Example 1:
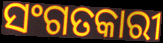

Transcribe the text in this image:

ସଂଗତକାରୀ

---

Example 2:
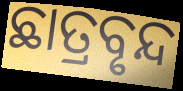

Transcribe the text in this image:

ଛାତ୍ରବୃନ୍ଦ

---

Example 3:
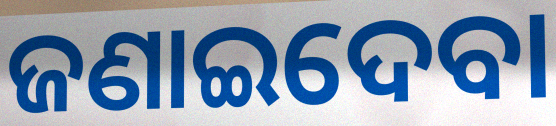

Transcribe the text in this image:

ଜଣାଇଦେବା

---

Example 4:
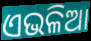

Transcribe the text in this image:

ଏଭଳିଆ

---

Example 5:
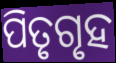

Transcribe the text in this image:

ପିତୃଗୃହ